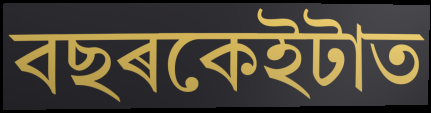
বছৰকেইটাত